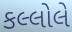
કલ્લોલે